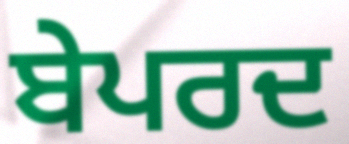
ਬੇਪਰਦ